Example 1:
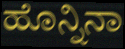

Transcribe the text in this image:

ಹೊನ್ನಿನಾ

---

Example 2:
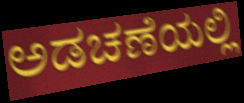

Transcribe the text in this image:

ಅಡಚಣೆಯಲ್ಲಿ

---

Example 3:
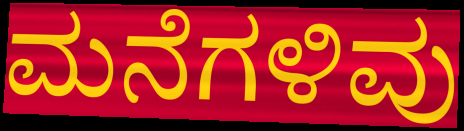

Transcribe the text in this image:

ಮನೆಗಳಿವು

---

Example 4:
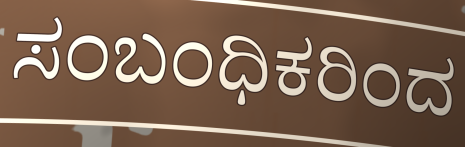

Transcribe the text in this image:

ಸಂಬಂಧಿಕರಿಂದ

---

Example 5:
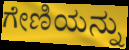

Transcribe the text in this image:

ಗೇಣಿಯನ್ನು